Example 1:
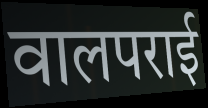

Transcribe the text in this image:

वालपराई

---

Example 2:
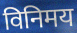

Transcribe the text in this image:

विनिमय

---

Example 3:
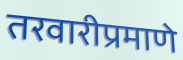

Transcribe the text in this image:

तरवारीप्रमाणे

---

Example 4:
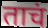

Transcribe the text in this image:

ताचं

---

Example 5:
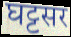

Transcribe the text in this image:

घट्टसर